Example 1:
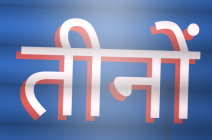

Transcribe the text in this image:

तीनों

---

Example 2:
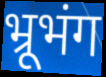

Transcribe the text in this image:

भ्रूभंग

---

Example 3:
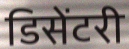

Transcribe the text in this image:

डिसेंटरी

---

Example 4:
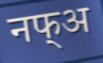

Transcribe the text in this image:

नफ्अ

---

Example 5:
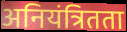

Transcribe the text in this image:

अनियंत्रितता